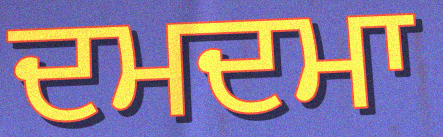
ਦਮਦਮਾ